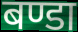
बण्डा